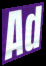
Ad